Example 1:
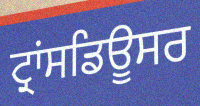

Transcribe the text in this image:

ਟ੍ਰਾਂਸਡਿਊਸਰ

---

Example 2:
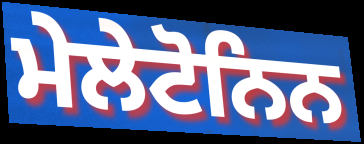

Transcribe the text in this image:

ਮੇਲੇਟੋਨਿਨ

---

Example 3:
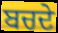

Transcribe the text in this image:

ਬਚਦੇ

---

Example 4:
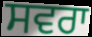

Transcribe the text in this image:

ਸਵਰਾ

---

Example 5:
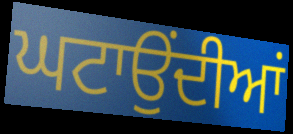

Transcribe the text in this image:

ਘਟਾਉਂਦੀਆਂ